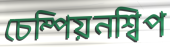
চেম্পিয়নশ্বিপ